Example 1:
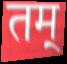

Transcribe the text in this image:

तम्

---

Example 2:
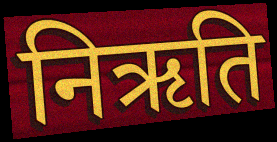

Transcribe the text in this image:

निऋति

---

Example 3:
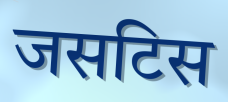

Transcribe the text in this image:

जसटिस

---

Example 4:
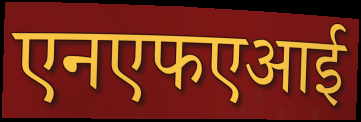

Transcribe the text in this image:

एनएफएआई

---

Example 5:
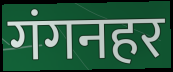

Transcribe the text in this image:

गंगनहर